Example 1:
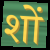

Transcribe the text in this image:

शों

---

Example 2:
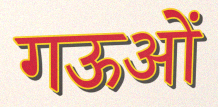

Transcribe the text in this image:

गऊओं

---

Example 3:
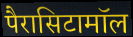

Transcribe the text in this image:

पैरासिटामॉल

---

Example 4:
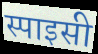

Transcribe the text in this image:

स्पाइसी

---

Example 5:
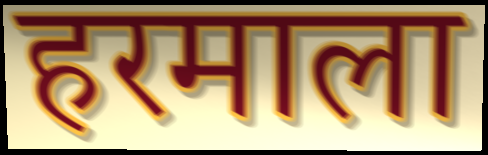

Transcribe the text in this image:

हरमाला